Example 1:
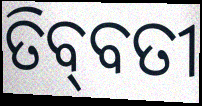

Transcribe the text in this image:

ତିବ୍‌ବତୀ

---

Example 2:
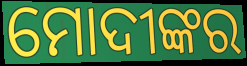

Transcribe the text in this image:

ମୋଦୀଙ୍କର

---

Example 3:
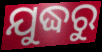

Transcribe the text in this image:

ଯୁଦ୍ଧରୁ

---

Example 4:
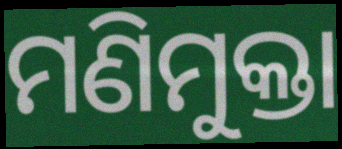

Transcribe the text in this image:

ମଣିମୁକ୍ତା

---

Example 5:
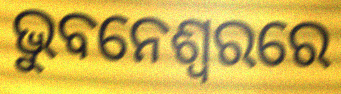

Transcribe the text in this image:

ଭୁବନେଶ୍ଵରରେ